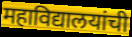
महाविद्यालयांची